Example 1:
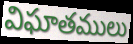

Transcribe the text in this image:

విఘాతములు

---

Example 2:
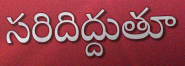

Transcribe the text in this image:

సరిదిద్దుతూ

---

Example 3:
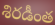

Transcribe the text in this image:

శిరడీంత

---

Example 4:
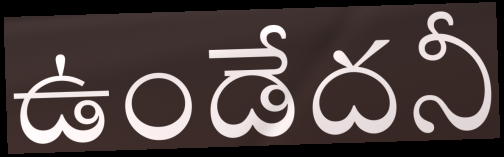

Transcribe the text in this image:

ఉండేదనీ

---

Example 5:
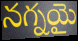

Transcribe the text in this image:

నగ్నయై